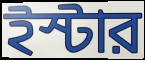
ইস্টার